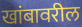
खांबावरील